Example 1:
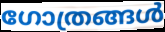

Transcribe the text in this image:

ഗോത്രങ്ങൾ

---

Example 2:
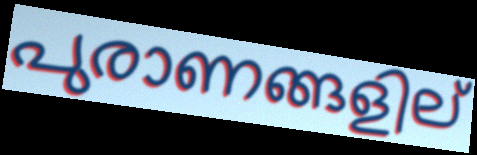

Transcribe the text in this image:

പുരാണങ്ങളില്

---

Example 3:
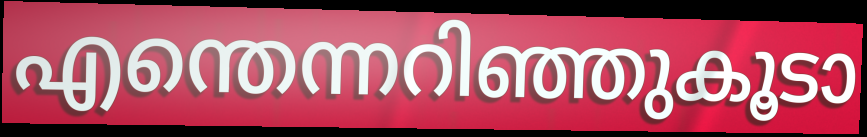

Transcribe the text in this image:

എന്തെന്നറിഞ്ഞുകൂടാ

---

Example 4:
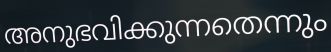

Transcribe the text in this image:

അനുഭവിക്കുന്നതെന്നും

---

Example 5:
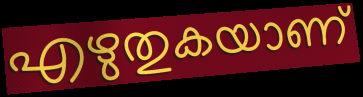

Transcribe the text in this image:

എഴുതുകയാണ്